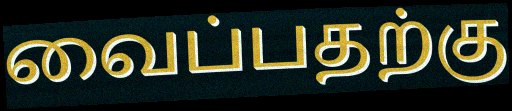
வைப்பதற்கு